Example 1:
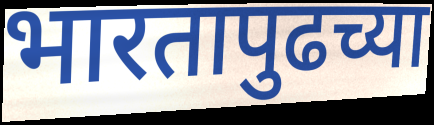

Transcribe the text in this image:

भारतापुढच्या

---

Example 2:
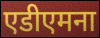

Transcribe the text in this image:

एडीएमना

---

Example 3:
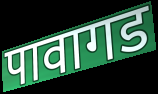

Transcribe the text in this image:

पावागड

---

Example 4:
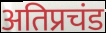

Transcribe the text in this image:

अतिप्रचंड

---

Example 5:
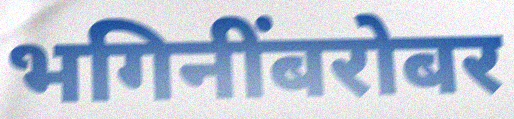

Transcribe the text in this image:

भगिनींबरोबर